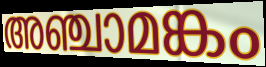
അഞ്ചാമങ്കം